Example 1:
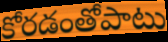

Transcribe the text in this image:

కోరడంతోపాటు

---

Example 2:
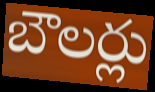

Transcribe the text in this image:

బౌలర్లు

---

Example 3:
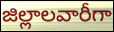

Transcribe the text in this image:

జిల్లాలవారీగా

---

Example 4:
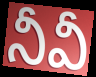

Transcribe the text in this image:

నీవీ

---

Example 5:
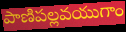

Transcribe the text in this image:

పాణిపల్లవయుగాం